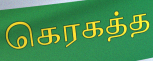
கெரகத்த